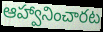
ఆహ్వానించారట